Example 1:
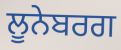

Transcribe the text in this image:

ਲੂਨੇਬਰਗ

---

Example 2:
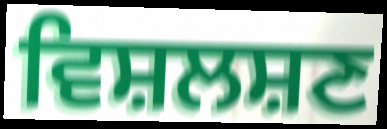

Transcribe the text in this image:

ਵਿਸ਼ਲਸ਼ਣ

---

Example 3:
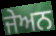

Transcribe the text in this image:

ਜੇਅਨ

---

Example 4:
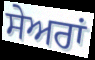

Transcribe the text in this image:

ਸੇਅਰਾਂ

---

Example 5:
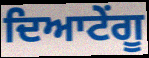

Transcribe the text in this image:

ਦਿਆਟੇਂਗੂ